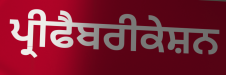
ਪ੍ਰੀਫੈਬਰੀਕੇਸ਼ਨ